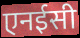
एनईसी